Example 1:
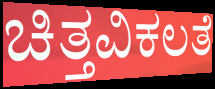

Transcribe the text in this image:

ಚಿತ್ತವಿಕಲತೆ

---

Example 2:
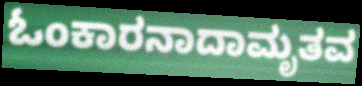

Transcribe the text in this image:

ಓಂಕಾರನಾದಾಮೃತವ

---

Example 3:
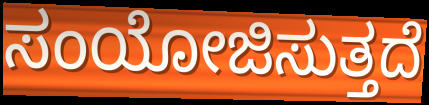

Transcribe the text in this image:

ಸಂಯೋಜಿಸುತ್ತದೆ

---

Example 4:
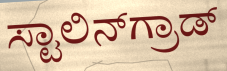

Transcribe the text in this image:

ಸ್ಟಾಲಿನ್‌ಗ್ರಾಡ್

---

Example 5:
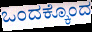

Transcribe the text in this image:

ಒಂದಕ್ಕೊಂದ